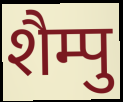
शैम्पु